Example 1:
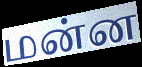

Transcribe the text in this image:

மன்ன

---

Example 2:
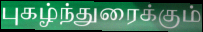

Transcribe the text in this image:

புகழ்ந்துரைக்கும்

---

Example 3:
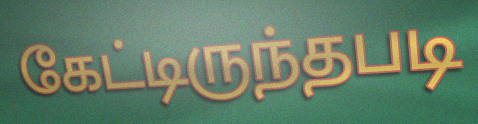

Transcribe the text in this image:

கேட்டிருந்தபடி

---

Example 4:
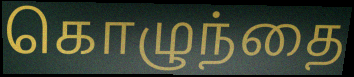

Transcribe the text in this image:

கொழுந்தை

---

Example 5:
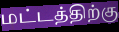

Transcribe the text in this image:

மட்டத்திற்கு